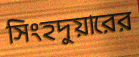
সিংহদুয়ারের